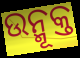
ଉନ୍ମୂକ୍ତ